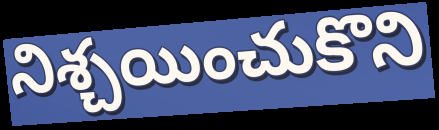
నిశ్చయించుకొని